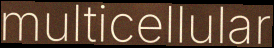
multicellular